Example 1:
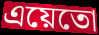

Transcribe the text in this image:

এয়েতো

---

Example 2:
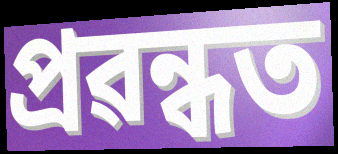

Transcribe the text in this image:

প্ৰৱন্ধত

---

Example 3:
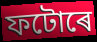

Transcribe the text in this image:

ফটোৰে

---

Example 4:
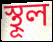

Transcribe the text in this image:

স্থূল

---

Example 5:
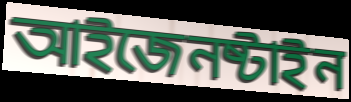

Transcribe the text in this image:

আইজেনষ্টাইন